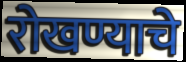
रोखण्याचे